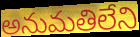
అనుమతిలేని